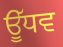
ਊੱਧਵ